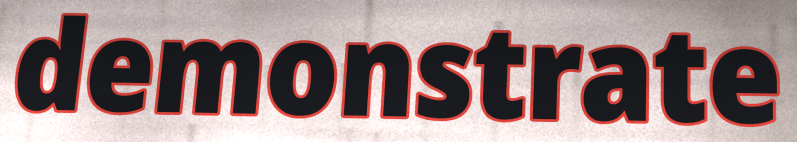
demonstrate